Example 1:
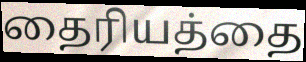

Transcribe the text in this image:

தைரியத்தை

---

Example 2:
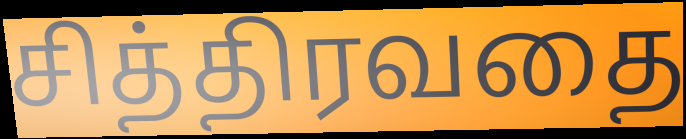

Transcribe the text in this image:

சித்திரவதை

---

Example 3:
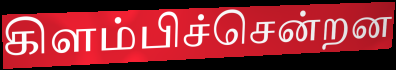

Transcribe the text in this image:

கிளம்பிச்சென்றன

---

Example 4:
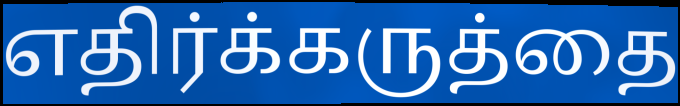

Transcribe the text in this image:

எதிர்க்கருத்தை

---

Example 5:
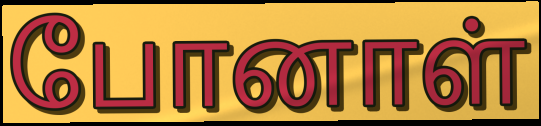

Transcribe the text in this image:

போனாள்